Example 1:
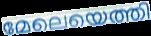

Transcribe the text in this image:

മേലെയെത്തി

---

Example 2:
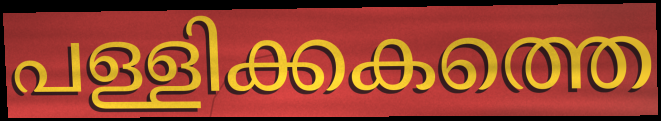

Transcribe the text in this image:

പള്ളിക്കകത്തെ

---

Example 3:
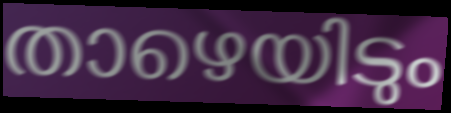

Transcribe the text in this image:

താഴെയിടും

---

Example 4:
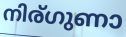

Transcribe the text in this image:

നിര്ഗുണാ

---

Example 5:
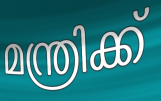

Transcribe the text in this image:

മന്ത്രിക്ക്